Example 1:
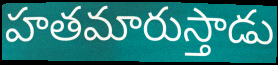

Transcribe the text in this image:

హతమారుస్తాడు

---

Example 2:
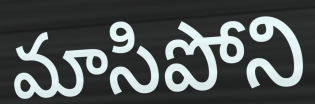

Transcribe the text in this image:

మాసిపోని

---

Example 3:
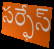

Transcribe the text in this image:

సర్ఫేస్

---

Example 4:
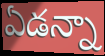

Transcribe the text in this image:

ఏడన్నా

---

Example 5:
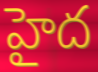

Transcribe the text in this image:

హైద